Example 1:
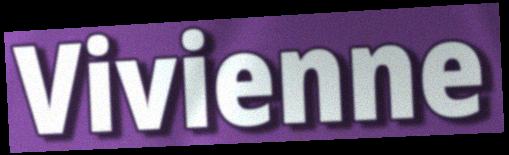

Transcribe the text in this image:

Vivienne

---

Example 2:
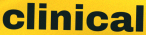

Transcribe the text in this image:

clinical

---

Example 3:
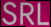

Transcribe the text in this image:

SRL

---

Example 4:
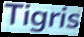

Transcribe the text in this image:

Tigris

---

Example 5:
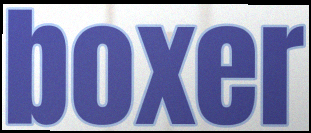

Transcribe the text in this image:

boxer